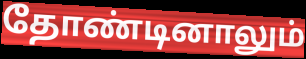
தோண்டினாலும்